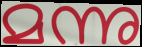
മന്നു